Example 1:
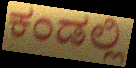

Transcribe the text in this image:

ಕಂಡಲ್ಲಿ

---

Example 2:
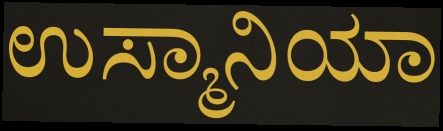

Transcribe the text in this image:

ಉಸ್ಮಾನಿಯಾ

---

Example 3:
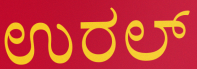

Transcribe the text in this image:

ಉರಲ್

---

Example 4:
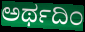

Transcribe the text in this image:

ಅರ್ಥದಿಂ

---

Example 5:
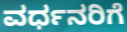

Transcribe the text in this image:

ವರ್ಧನರಿಗೆ